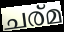
ചര്മ